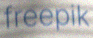
freepik